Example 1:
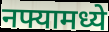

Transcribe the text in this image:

नफ्यामध्ये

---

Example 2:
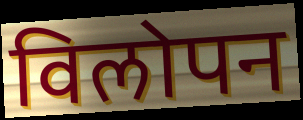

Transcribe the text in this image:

विलोपन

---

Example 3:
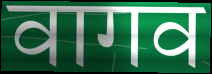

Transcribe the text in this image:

वागव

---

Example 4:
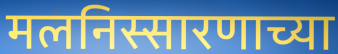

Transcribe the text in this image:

मलनिस्सारणाच्या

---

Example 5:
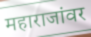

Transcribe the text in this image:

महाराजांवर